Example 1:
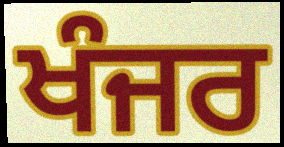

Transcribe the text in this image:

ਖੰਜਰ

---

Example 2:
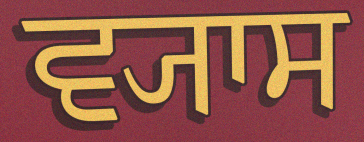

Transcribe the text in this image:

ਵ੍ਯਾਸ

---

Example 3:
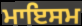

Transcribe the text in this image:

ਮਾਇਸਮ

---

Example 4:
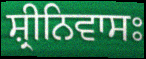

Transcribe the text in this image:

ਸ਼੍ਰੀਨਿਵਾਸਃ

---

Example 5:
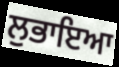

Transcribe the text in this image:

ਲੁਭਾਇਆ